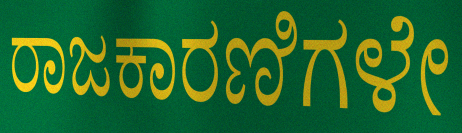
ರಾಜಕಾರಣಿಗಳೇ